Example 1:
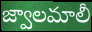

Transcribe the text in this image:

జ్వాలమాలీ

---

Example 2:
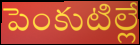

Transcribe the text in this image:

పెంకుటిల్లే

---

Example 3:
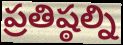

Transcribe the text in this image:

ప్రతిష్ఠల్ని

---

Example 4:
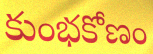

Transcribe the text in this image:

కుంభకోణం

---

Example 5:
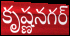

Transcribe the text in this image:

కృష్ణనగర్